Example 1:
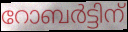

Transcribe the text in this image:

റോബർട്ടിന്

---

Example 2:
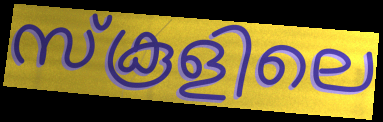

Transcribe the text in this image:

സ്കൂളിലെ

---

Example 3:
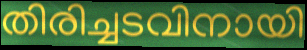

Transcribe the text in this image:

തിരിച്ചടവിനായി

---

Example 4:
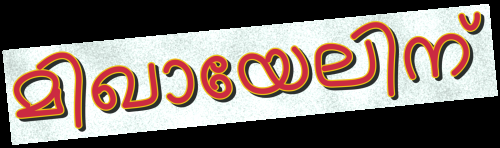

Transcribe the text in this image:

മിഖായേലിന്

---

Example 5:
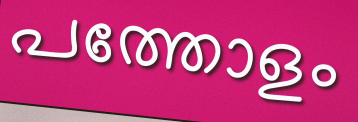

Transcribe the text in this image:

പത്തോളം